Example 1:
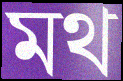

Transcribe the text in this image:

মথ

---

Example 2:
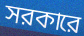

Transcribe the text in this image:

সরকারে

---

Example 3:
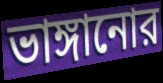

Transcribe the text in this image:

ভাঙ্গানোর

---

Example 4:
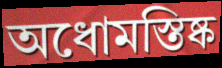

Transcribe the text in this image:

অধোমস্তিষ্ক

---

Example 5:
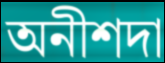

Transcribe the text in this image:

অনীশদা